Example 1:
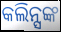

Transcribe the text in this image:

କଲିନ୍ସଙ୍କ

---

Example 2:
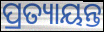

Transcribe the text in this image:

ପ୍ରତ୍ୟାୟନ୍ତ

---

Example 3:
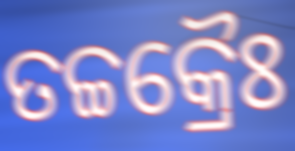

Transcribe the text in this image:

ତଚ୍ଚକ୍ରୈଃ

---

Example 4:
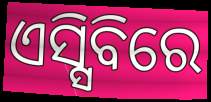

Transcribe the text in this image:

ଏସ୍ସିବିରେ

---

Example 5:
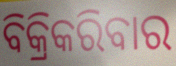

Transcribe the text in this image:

ବିକ୍ରିକରିବାର